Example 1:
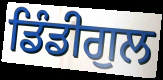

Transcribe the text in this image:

ਡਿੰਡੀਗੁਲ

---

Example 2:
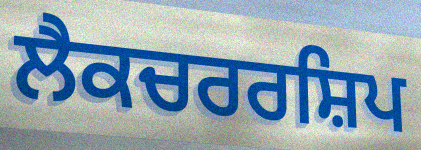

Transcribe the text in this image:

ਲੈਕਚਰਰਸ਼ਿਪ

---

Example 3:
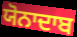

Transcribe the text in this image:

ਯੋਨਾਦਾਬ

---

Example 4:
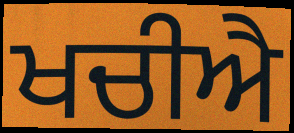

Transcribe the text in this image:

ਖਚੀਐ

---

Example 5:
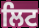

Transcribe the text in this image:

ਲਿਟ